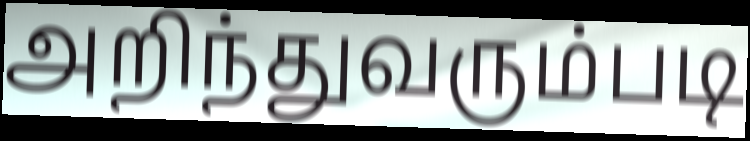
அறிந்துவரும்படி